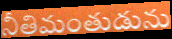
నీతిమంతుడును